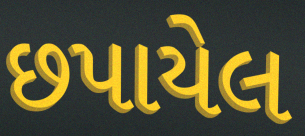
છપાયેલ